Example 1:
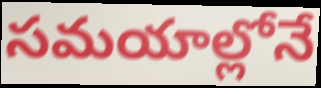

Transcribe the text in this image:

సమయాల్లోనే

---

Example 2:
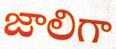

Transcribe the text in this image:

జాలిగా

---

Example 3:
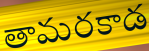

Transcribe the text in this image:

తామరకాడ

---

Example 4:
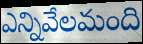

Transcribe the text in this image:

ఎన్నివేలమంది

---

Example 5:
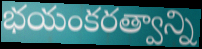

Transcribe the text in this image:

భయంకరత్వాన్ని